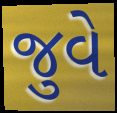
જુવે